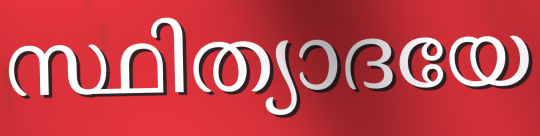
സ്ഥിത്യാദയേ